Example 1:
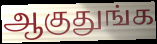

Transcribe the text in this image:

ஆகுதுங்க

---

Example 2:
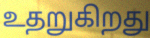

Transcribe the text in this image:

உதறுகிறது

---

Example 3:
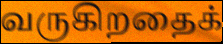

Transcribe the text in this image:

வருகிறதைக்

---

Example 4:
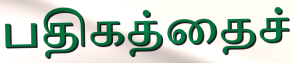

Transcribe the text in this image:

பதிகத்தைச்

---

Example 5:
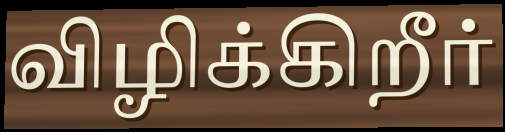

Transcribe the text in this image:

விழிக்கிறீர்